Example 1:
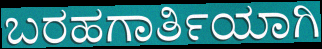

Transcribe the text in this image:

ಬರಹಗಾರ್ತಿಯಾಗಿ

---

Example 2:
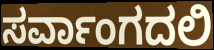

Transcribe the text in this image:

ಸರ್ವಾಂಗದಲಿ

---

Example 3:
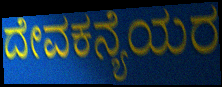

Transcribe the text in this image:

ದೇವಕನ್ಯೆಯರ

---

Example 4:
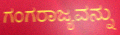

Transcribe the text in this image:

ಗಂಗರಾಜ್ಯವನ್ನು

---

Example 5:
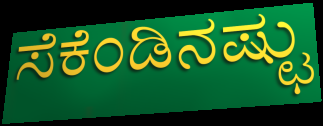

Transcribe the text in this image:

ಸೆಕೆಂಡಿನಷ್ಟು